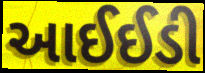
આઈઈડી